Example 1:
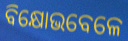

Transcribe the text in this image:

ବିକ୍ଷୋଭବେଳେ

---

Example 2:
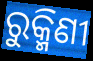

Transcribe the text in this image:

ରୁକ୍ମିଣୀ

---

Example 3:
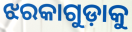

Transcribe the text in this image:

ଝରକାଗୁଡ଼ାକୁ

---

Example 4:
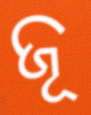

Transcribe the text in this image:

ଜୂ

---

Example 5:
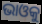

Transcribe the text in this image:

ଭାଓକୁ